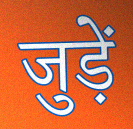
जुड़ें